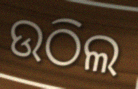
ଉଠିଲ